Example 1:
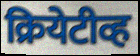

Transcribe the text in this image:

क्रियेटीव्ह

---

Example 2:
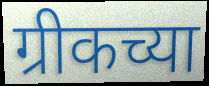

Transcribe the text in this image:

ग्रीकच्या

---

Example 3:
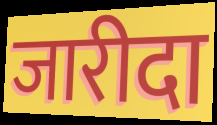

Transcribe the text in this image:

जारीदा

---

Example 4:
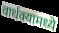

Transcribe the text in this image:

वार्धक्यामध्ये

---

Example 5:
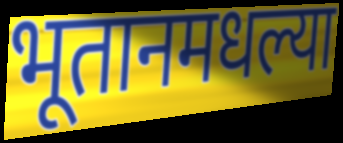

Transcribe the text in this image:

भूतानमधल्या